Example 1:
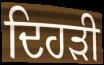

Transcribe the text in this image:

ਦਿਹੜੀ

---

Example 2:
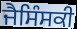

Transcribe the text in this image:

ਜੈਸਿੰਸਕੀ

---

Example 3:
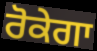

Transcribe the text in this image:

ਰੋਕੇਗਾ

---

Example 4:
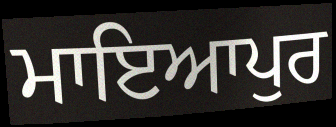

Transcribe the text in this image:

ਮਾਇਆਪੁਰ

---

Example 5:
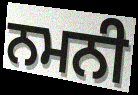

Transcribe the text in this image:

ਨਮਨੀ